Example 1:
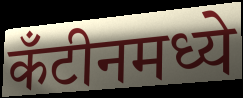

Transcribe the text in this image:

कँटीनमध्ये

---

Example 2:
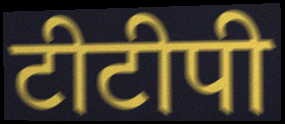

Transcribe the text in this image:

टीटीपी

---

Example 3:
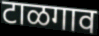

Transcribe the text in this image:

टाळगाव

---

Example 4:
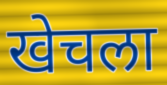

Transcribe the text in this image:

खेचला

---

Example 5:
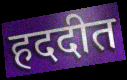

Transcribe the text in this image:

हददीत